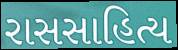
રાસસાહિત્ય